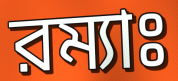
রম্যাঃ